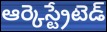
ఆర్కెస్ట్రేటెడ్